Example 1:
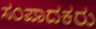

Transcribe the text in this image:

ಸಂಪಾದಕರು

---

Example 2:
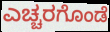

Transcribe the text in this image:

ಎಚ್ಚರಗೊಂಡೆ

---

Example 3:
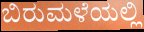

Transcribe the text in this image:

ಬಿರುಮಳೆಯಲ್ಲಿ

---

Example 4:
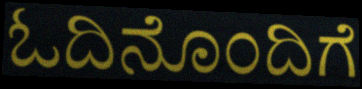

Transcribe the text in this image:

ಓದಿನೊಂದಿಗೆ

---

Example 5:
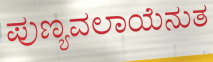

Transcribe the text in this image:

ಪುಣ್ಯವಲಾಯೆನುತ